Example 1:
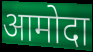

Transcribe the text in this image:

आमोदा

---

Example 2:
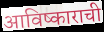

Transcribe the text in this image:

आविष्काराची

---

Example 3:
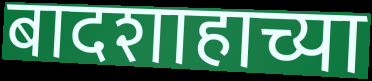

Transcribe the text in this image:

बादशाहाच्या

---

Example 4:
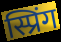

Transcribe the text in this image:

स्प्रिंग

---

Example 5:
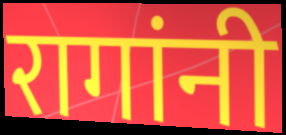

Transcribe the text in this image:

रागांनी